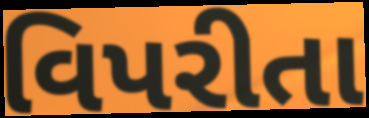
વિપરીતા